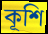
কূশি